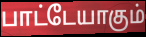
பாட்டேயாகும்